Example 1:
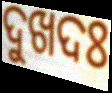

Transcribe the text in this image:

ଦୁଖଦଃ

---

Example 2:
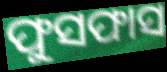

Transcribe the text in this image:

ଫୁସଫାସ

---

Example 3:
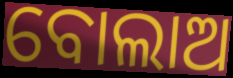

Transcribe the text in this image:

ବୋଲାଅ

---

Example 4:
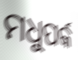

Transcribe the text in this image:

ମଧୁପର୍କ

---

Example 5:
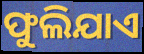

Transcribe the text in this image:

ଫୁଲିଯାଏ